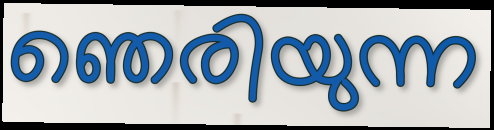
ഞെരിയുന്ന